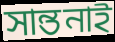
সান্তনাই